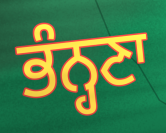
ਭੰਨ੍ਹਣਾ